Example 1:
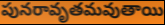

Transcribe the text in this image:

పునరావృతమవుతాయి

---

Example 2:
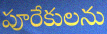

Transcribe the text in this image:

పూరేకులను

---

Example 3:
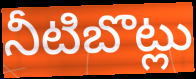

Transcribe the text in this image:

నీటిబొట్లు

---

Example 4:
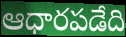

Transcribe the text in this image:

ఆధారపడేది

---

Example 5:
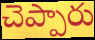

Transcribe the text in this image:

చెప్పారు